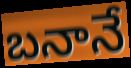
బనానే